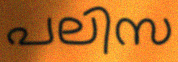
പലിസ